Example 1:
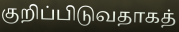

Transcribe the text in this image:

குறிப்பிடுவதாகத்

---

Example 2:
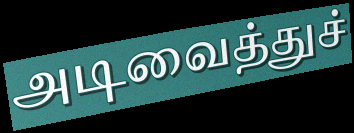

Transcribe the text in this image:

அடிவைத்துச்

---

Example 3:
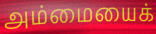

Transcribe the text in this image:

அம்மையைக்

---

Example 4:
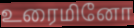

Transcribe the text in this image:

உரைமினோ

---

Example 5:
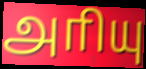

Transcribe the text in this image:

அரியு